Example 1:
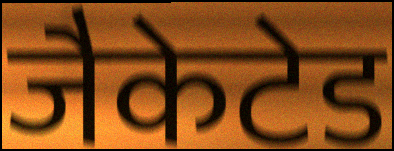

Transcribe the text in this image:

जैकेटेड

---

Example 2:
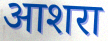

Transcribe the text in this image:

आशरा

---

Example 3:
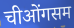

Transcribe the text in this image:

चीओंगसम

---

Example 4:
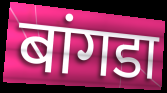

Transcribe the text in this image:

बांगडा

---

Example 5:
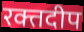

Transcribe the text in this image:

रक्तदीप